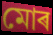
মোৰ